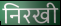
निरखी